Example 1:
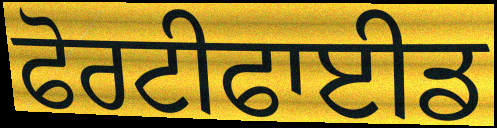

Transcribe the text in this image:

ਫੋਰਟੀਫਾਈਡ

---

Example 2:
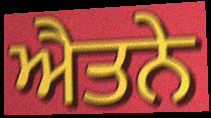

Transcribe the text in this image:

ਐਤਨੇ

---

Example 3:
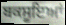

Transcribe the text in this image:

ਬਕਸੂਇਆਂ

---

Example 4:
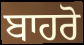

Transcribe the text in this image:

ਬਾਹਰੋ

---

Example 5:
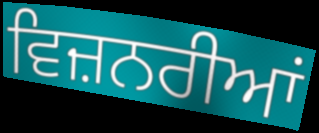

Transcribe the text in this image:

ਵਿਜ਼ਨਰੀਆਂ